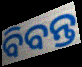
ବିବନ୍ତ